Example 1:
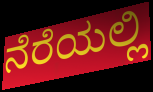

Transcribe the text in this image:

ನೆರೆಯಲ್ಲಿ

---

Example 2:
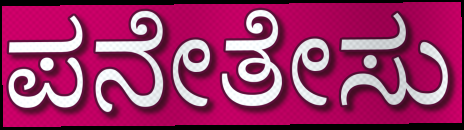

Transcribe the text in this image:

ಪನೇತೇಸು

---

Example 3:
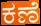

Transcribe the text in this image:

ಕಣೆ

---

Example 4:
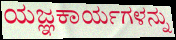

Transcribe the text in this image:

ಯಜ್ಞಕಾರ್ಯಗಳನ್ನು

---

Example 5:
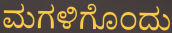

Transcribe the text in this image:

ಮಗಳಿಗೊಂದು